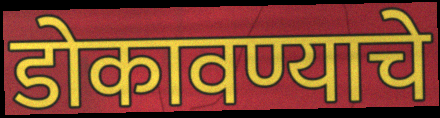
डोकावण्याचे